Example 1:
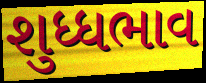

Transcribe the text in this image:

શુધ્ધભાવ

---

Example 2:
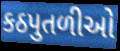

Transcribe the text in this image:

કઠપુતળીઓ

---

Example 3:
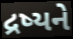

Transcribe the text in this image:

દ્રષ્યને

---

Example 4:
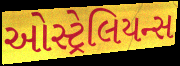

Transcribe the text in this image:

ઓસ્ટ્રેલિયન્સ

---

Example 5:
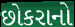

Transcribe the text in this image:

છોકરાનો